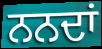
ਨਨਦਾਂ